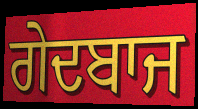
ਗੇਦਬਾਜ